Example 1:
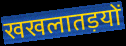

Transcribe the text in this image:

खखलातड़यों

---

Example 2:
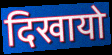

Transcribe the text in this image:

दिखायो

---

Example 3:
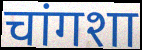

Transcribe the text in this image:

चांगशा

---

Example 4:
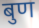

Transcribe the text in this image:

बुण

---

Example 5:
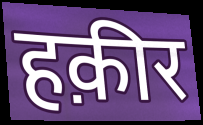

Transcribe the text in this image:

हक़ीर